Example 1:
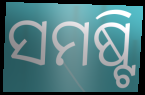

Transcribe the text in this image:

ସମଷ୍ଟି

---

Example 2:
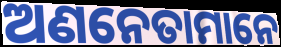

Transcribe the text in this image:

ଅଣନେତାମାନେ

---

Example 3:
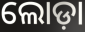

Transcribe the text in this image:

ଲୋଡ଼ା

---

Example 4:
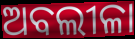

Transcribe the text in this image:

ଅବଲୀଳା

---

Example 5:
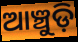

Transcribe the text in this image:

ଆଞ୍ଚୁଡ଼ି